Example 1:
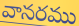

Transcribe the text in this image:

వానరము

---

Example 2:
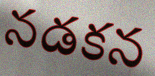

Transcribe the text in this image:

నడకన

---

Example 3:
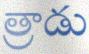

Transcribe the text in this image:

త్రాడు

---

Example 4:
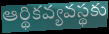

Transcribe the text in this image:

ఆర్థికవ్యవస్థకు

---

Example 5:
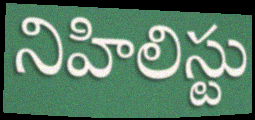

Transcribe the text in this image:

నిహిలిస్టు